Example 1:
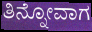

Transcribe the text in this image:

ತಿನ್ನೋವಾಗ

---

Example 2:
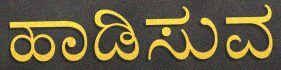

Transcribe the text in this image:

ಹಾಡಿಸುವ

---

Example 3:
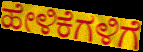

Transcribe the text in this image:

ಹೇಳಿಕೆಗಳಿಗೆ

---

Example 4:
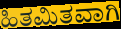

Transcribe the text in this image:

ಹಿತಮಿತವಾಗಿ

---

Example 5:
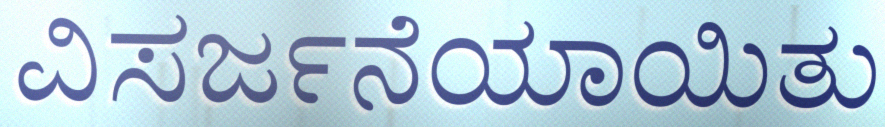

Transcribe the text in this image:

ವಿಸರ್ಜನೆಯಾಯಿತು